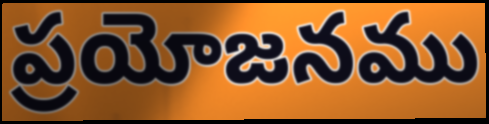
ప్రయోజనము